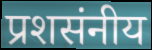
प्रशसंनीय